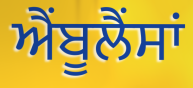
ਐੰਬੂਲੈਂਸਾਂ